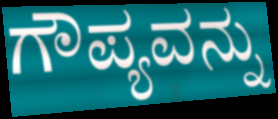
ಗೌಪ್ಯವನ್ನು